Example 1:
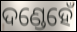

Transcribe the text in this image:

ଦଣ୍ଡେହେଁ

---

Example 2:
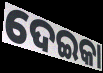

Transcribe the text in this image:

ଦେଇକା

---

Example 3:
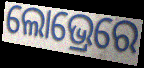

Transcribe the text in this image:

ଲୋଭ୍ରେରେ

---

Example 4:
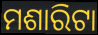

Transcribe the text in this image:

ମଶାରିଟା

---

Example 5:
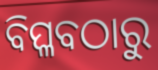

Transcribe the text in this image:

ବିପ୍ଳବଠାରୁ